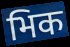
भिक